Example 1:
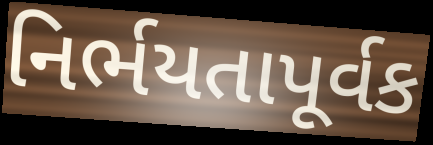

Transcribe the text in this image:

નિર્ભયતાપૂર્વક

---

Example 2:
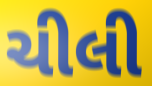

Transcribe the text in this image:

ચીલી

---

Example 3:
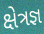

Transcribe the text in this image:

ક્ષેત્રજ્ઞ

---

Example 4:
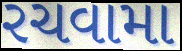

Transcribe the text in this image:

રચવામા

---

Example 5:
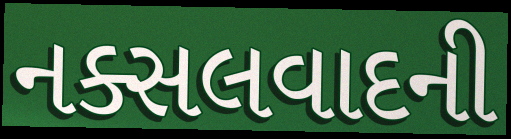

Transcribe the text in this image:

નક્સલવાદની